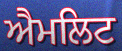
ਐਮਲਿਟ